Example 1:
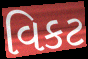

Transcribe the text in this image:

વિકટ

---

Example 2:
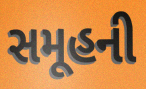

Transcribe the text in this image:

સમૂહની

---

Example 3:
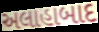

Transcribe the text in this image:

અલાહાબાદ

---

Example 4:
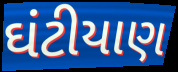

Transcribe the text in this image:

ઘંટીયાણ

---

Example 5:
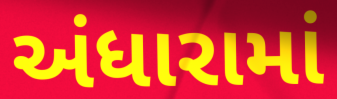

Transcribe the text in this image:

અંધારામાં